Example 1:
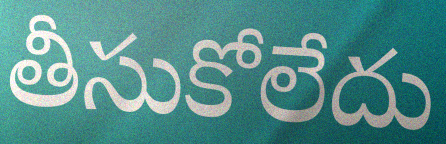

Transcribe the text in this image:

తీసుకోలేదు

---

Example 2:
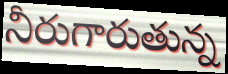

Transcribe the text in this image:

నీరుగారుతున్న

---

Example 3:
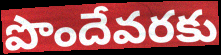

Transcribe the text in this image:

పొందేవరకు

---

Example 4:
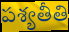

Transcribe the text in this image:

పశ్యతీతి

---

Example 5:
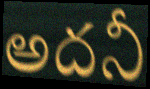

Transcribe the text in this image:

అదనీ